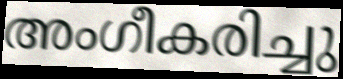
അംഗീകരിച്ചു